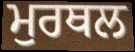
ਮੁਰਥਲ